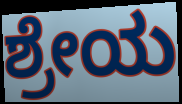
ಶ್ರೇಯ